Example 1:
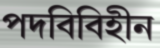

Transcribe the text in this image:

পদবিবিহীন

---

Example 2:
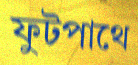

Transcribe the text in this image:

ফুটপাথে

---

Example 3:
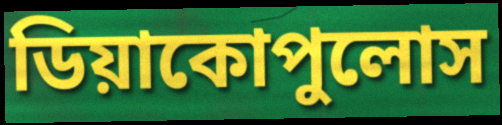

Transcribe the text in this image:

ডিয়াকোপুলোস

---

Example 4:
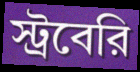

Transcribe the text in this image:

স্ট্রবেরি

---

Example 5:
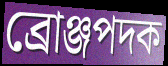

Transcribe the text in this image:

ব্রোঞ্জপদক